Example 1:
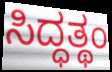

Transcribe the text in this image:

ಸಿದ್ಧತ್ಥಂ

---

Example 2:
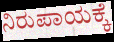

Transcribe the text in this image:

ನಿರುಪಾಯಕ್ಕೆ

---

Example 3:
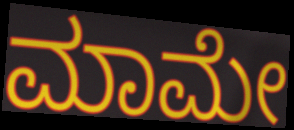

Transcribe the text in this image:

ಮಾಮೇ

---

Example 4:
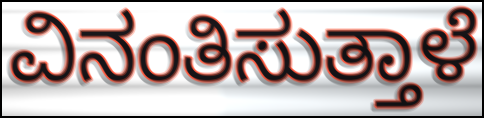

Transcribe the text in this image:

ವಿನಂತಿಸುತ್ತಾಳೆ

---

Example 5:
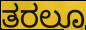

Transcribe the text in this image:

ತರಲೂ